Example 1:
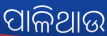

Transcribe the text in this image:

ପାଳିଥାଉ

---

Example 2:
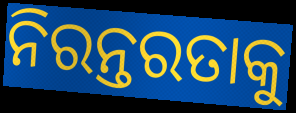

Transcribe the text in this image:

ନିରନ୍ତରତାକୁ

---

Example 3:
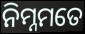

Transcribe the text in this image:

ନିମ୍ନମତେ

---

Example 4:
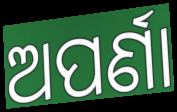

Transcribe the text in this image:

ଅପର୍ଣା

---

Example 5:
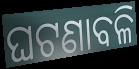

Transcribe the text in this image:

ଘଟଣାବଳି